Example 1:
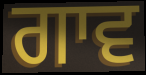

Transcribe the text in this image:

ਗਾਵ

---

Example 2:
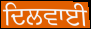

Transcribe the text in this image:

ਦਿਲਵਾਈ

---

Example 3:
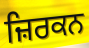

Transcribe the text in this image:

ਜ਼ਿਰਕਨ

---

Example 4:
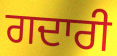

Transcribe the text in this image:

ਗਦਾਰੀ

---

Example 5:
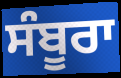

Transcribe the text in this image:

ਸੰਬੂਰਾ